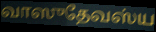
வாஸுதேவஸ்ய